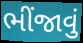
ભીંજાવું